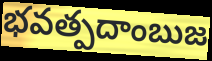
భవత్పదాంబుజ